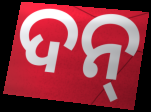
ଦନ୍